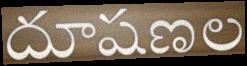
దూషణల